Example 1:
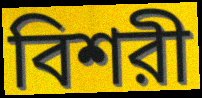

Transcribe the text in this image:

বিশরী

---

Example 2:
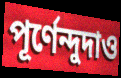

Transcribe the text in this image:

পূর্ণেন্দুদাও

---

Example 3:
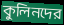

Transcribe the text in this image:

কুলিনদের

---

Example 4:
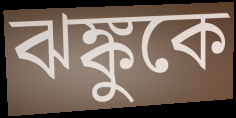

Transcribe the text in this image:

ঝঙ্কুকে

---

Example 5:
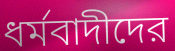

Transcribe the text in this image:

ধর্মবাদীদের